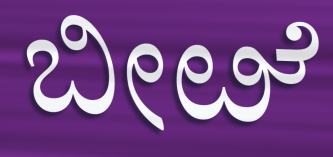
ಬೀೞೆ